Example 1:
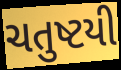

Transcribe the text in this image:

ચતુષ્ટયી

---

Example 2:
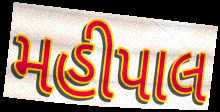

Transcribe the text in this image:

મહીપાલ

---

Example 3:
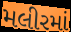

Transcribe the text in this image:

મલીરમાં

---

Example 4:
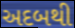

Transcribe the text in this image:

અદબથી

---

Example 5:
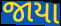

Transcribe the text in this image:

જાયા